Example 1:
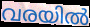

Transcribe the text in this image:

വരയിൽ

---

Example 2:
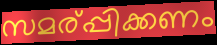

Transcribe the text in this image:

സമര്പ്പിക്കണം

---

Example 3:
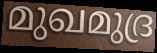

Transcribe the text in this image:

മുഖമുദ്ര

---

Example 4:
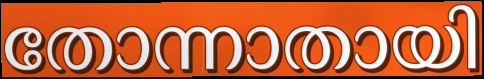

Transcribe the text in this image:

തോന്നാതായി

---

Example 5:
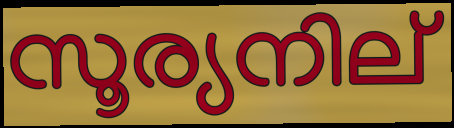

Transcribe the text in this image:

സൂര്യനില്